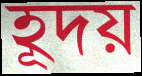
হূদয়